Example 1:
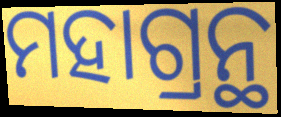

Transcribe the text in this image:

ମହାଗ୍ରନ୍ଥ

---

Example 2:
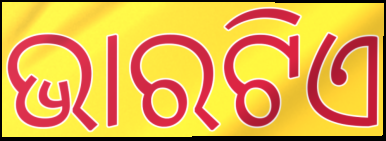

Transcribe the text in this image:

ଭାରଟିଏ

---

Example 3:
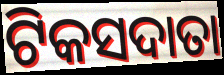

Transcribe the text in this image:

ଟିକସଦାତା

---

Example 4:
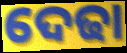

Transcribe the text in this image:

ଦେଢା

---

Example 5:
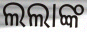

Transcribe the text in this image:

ଲଲାଙ୍କ